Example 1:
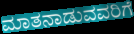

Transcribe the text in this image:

ಮಾತನಾಡುವವರಿಗೆ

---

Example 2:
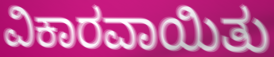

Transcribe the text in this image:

ವಿಕಾರವಾಯಿತು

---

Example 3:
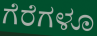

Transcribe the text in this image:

ಗೆರೆಗಳೂ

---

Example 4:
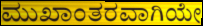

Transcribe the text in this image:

ಮುಖಾಂತರವಾಗಿಯೇ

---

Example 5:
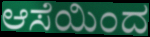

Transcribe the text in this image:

ಆಸೆಯಿಂದ